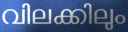
വിലക്കിലും